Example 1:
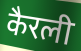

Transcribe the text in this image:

कैरली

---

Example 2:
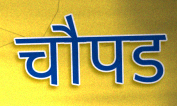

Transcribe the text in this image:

चौपड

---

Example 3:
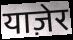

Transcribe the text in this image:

याज़ेर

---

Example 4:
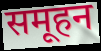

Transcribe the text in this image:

समूहन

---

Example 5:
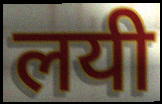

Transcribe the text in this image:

लयी